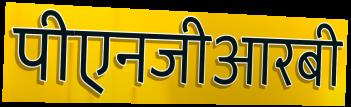
पीएनजीआरबी